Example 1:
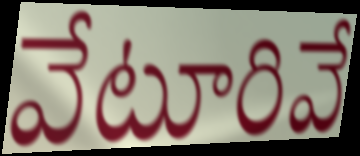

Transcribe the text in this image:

వేటూరివే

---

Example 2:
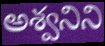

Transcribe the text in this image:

అశ్వనిని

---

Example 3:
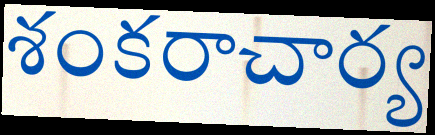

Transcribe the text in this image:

శంకరాచార్య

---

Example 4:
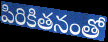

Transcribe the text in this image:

పిరికితనంతో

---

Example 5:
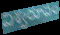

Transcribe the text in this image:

విశ్వరూపం